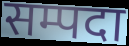
सम्पदा